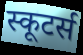
स्कूटर्स